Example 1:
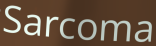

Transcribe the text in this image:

Sarcoma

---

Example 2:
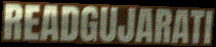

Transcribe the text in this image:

READGUJARATI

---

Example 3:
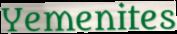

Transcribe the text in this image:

Yemenites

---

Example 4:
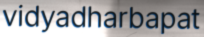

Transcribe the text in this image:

vidyadharbapat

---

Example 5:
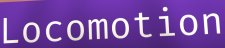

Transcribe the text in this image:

Locomotion